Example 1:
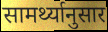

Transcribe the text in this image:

सामर्थ्यानुसार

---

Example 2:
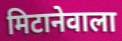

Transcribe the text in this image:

मिटानेवाला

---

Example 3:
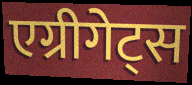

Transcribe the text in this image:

एग्रीगेट्स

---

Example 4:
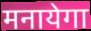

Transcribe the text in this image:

मनायेगा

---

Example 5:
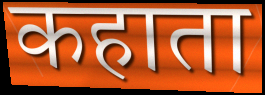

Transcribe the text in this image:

कहाता